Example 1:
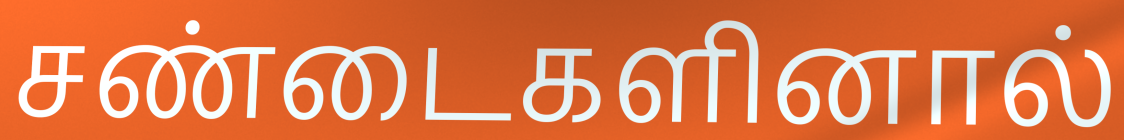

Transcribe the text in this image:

சண்டைகளினால்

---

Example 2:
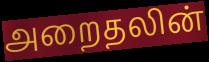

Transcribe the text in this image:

அறைதலின்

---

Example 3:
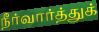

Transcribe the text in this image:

நீர்வார்த்துக்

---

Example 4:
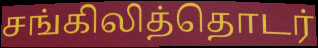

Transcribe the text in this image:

சங்கிலித்தொடர்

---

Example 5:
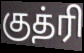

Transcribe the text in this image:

குத்ரி